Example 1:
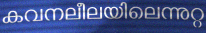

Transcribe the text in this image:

കവനലീലയിലെന്നുറ്റ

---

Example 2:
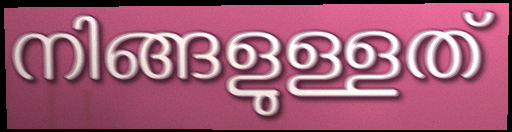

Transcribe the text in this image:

നിങ്ങളുള്ളത്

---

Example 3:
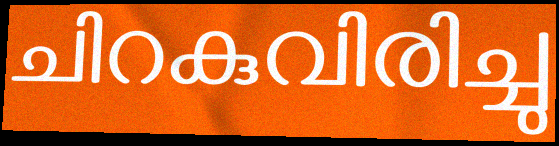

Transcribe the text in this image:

ചിറകുവിരിച്ചു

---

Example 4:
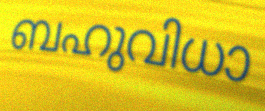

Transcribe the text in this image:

ബഹുവിധാ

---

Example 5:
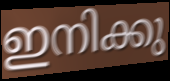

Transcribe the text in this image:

ഇനിക്കു